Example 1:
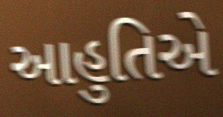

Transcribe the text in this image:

આહુતિએ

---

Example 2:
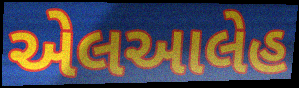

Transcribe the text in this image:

એલઆલેહ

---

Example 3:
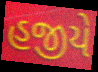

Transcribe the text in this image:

હજીયે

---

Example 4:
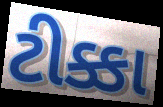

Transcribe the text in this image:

ટીક્કા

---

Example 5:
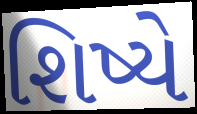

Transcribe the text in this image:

શિષ્યે